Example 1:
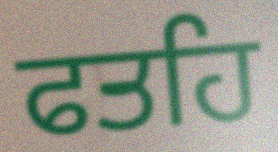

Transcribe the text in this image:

ਫਤਹਿ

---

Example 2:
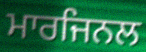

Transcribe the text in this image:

ਮਾਰਜਿਨਲ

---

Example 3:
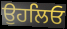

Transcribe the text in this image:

ਉਹਲਿਓ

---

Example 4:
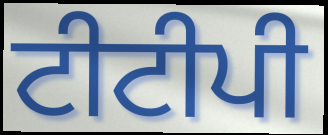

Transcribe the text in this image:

ਟੀਟੀਪੀ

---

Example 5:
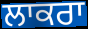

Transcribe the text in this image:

ਲਾਕਰਾ